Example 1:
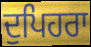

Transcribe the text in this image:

ਦੁਪਿਹਰਾ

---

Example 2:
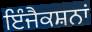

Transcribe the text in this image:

ਇੰਜੈਕਸ਼ਨਾਂ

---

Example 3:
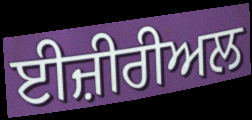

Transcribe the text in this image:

ਈਜ਼ੀਰੀਅਲ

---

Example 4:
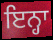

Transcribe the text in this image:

ਇਨ੍ਹਾ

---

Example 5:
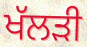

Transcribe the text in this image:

ਖੱਲੜੀ